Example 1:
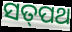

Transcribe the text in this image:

ସତ୍‌ପଥ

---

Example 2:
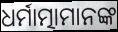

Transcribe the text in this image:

ଧର୍ମାତ୍ମାମାନଙ୍କ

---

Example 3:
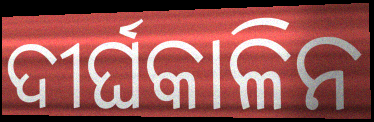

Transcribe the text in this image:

ଦୀର୍ଘକାଳିନ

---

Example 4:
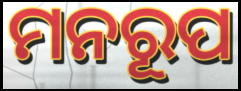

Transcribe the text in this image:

ମନରୂପ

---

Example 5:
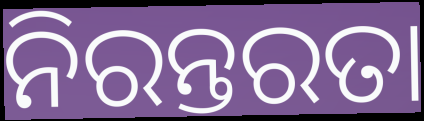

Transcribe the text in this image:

ନିରନ୍ତରତା